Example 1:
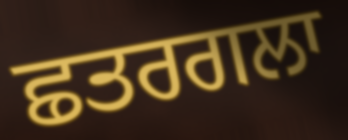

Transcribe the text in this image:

ਛਤਰਗਲਾ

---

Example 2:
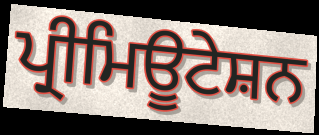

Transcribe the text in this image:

ਪ੍ਰੀਮਿਊਟੇਸ਼ਨ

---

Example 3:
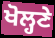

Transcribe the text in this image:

ਖੋਲ੍ਹਣੇ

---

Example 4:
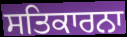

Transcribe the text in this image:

ਸਤਿਕਾਰਨਾ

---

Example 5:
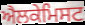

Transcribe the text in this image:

ਐਲਕੇਮਿਸਟ